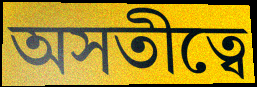
অসতীত্বে